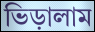
ভিড়ালাম